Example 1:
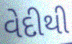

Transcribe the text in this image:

વેદીથી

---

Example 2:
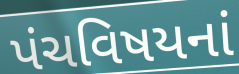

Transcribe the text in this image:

પંચવિષયનાં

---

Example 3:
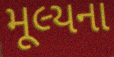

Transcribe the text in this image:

મૂલ્યના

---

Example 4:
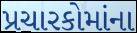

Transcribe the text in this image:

પ્રચારકોમાંના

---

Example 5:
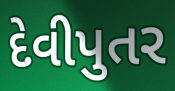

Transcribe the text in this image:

દેવીપુતર